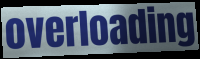
overloading